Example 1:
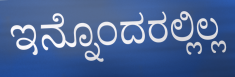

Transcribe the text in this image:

ಇನ್ನೊಂದರಲ್ಲಿಲ್ಲ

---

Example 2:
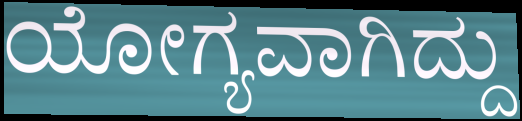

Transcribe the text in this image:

ಯೋಗ್ಯವಾಗಿದ್ದು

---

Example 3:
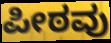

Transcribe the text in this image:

ಪೀಠವು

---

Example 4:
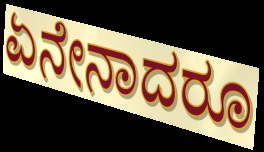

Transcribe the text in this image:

ಏನೇನಾದರೂ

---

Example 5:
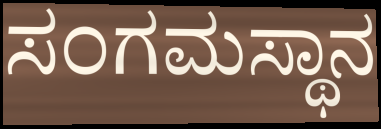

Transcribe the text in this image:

ಸಂಗಮಸ್ಥಾನ